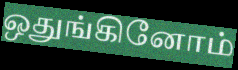
ஒதுங்கினோம்